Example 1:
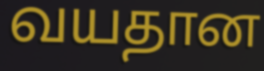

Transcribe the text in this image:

வயதான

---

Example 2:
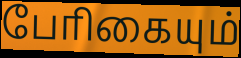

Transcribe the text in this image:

பேரிகையும்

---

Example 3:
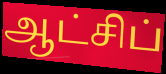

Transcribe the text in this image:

ஆட்சிப்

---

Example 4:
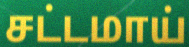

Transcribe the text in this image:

சட்டமாய்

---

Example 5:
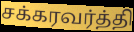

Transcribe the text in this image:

சக்கரவர்த்தி